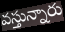
వస్తున్నారు